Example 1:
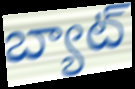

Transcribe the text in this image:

బ్యాట్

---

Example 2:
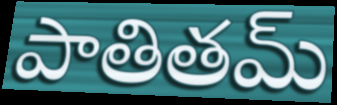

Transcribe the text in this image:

పాతితమ్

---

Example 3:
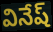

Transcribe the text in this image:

వినేష్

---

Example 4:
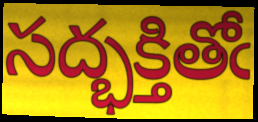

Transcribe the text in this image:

సద్భక్తితోఁ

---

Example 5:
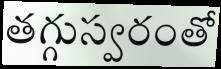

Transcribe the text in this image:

తగ్గుస్వరంతో